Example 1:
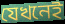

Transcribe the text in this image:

যেখনেই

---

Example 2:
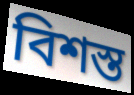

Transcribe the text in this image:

বিশস্ত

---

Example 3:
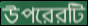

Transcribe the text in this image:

উপরেরটি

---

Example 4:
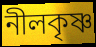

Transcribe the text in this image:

নীলকৃষ্ণ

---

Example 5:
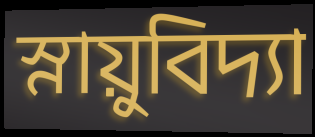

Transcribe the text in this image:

স্নায়ুবিদ্যা